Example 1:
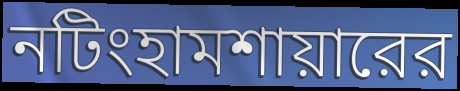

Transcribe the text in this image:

নটিংহামশায়ারের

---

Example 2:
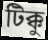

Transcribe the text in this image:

টিক্কু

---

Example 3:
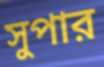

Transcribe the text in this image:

সুপার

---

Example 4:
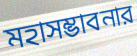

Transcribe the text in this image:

মহাসম্ভাবনার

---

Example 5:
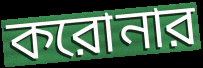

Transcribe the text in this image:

করোনার